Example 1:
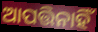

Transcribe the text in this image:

ଆପତ୍ତିନାହିଁ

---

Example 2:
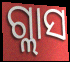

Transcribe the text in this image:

ଗ୍ଲାସ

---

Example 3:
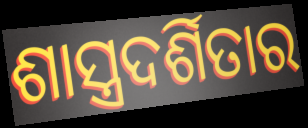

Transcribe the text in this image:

ଶାସ୍ତ୍ରଦର୍ଶିତାର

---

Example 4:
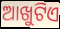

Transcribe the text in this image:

ଆଖୁଟିଏ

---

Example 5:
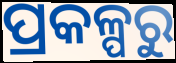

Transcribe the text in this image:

ପ୍ରକଳ୍ପରୁ